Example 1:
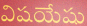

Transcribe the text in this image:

విషయేషు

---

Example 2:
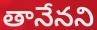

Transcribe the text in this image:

తానేనని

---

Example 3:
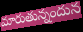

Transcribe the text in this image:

మారుతున్నందున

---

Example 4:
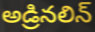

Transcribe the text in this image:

అడ్రినలిన్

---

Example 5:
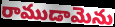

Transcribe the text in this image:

రాముడామెను